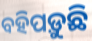
ବହିପଡ଼ୁଛି